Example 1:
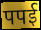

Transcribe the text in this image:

पपई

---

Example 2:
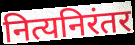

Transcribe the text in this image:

नित्यनिरंतर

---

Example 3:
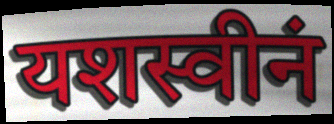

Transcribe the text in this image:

यशस्वीनं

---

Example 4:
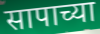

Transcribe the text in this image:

सापाच्या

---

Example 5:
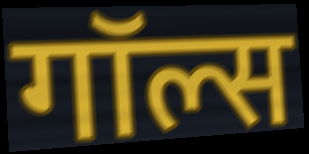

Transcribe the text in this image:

गॉल्स